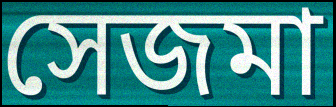
সেজমা